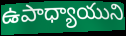
ఉపాధ్యాయుని